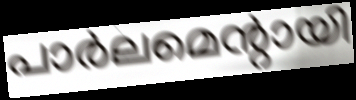
പാർലമെന്റായി